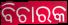
ବିଚାରକ